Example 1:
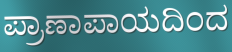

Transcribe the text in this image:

ಪ್ರಾಣಾಪಾಯದಿಂದ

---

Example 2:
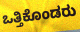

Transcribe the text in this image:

ಒತ್ತಿಕೊಂಡರು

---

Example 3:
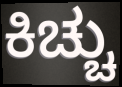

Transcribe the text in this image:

ಕಿಚ್ಚು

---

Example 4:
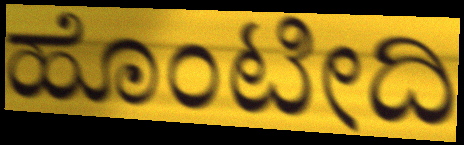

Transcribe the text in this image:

ಹೊಂಟೀದಿ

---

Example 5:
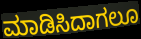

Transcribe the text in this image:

ಮಾಡಿಸಿದಾಗಲೂ